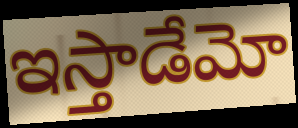
ఇస్తాడేమో